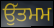
ਉੱਤਮਮ